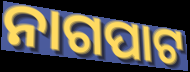
ନାଗପାଟ